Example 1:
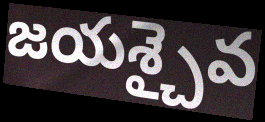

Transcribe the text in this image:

జయశ్చైవ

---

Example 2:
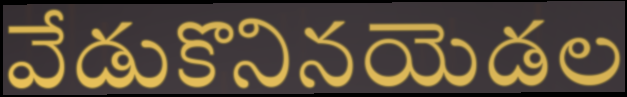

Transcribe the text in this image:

వేడుకొనినయెడల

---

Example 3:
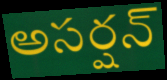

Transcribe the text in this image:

అసర్షన్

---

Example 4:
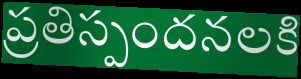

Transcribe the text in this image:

ప్రతిస్పందనలకి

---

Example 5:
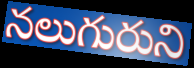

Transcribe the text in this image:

నలుగురుని